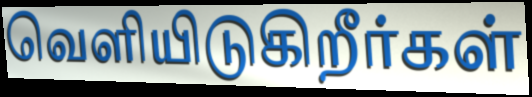
வெளியிடுகிறீர்கள்